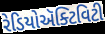
રેડિયોઍક્ટિવિટી